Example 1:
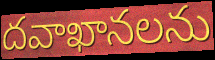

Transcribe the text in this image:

దవాఖానలను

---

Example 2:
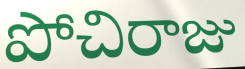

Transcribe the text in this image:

పోచిరాజు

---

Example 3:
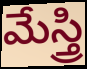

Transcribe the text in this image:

మేస్త్రి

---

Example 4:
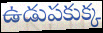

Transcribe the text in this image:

ఉడుపకుక్క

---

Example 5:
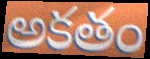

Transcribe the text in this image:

అకతం